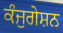
ਕੰਜੁਗੇਸ਼ਨ